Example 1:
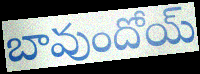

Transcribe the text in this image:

బావుందోయ్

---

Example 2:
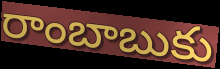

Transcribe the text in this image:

రాంబాబుకు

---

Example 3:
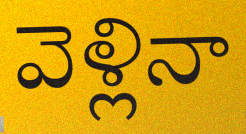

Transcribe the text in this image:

వెళ్లినా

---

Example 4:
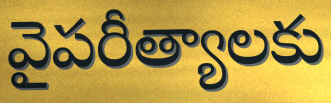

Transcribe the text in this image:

వైపరీత్యాలకు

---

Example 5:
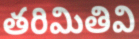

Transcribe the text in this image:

తరిమితివి